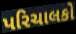
પરિચાલકો